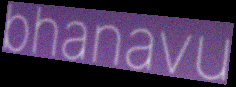
bhanavu